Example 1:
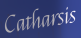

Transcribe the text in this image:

Catharsis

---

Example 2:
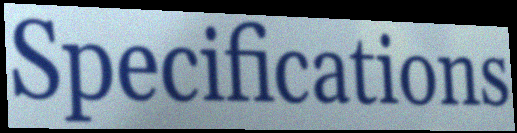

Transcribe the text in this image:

Specifications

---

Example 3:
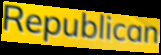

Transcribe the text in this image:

Republican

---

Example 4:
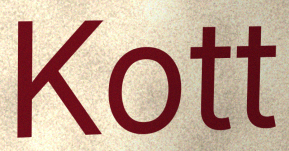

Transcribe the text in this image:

Kott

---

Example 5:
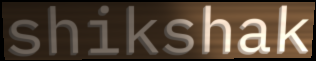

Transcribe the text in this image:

shikshak